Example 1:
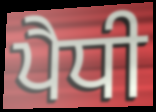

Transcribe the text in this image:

ਪੈਧੀ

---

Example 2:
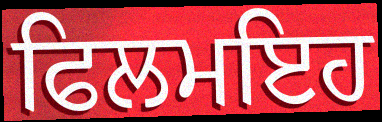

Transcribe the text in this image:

ਫਿਲਮਇਹ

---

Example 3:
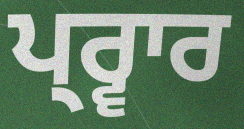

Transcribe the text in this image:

ਪ੍ਰ੍ਵਾਰ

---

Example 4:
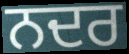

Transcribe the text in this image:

ਨਦਰ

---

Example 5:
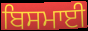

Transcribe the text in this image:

ਬਿਸਮਾਈ